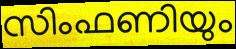
സിംഫണിയും